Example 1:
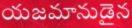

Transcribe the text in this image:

యజమానుడైన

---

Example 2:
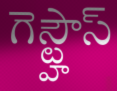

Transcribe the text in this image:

గెస్ట్హౌస్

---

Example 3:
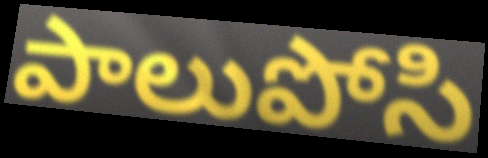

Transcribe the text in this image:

పాలుపోసి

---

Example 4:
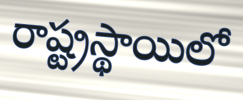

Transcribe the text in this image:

రాష్ట్రస్థాయిలో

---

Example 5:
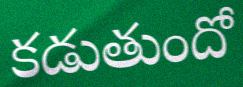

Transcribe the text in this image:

కడుతుందో